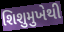
શિશુમુખેથી